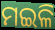
ମଇଳି